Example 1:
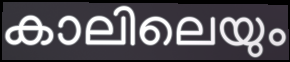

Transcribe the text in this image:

കാലിലെയും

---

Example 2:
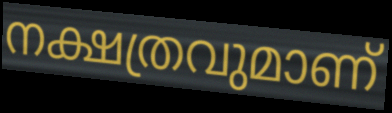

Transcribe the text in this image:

നക്ഷത്രവുമാണ്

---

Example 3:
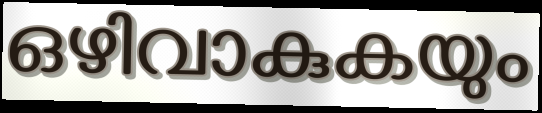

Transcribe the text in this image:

ഒഴിവാകുകയും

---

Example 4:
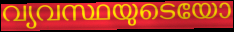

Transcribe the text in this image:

വ്യവസ്ഥയുടെയോ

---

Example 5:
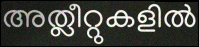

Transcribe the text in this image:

അത്ലീറ്റുകളിൽ